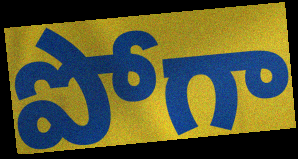
పోగా